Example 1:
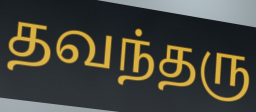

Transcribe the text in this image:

தவந்தரு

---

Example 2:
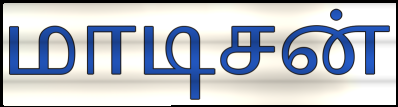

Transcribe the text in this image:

மாடிசன்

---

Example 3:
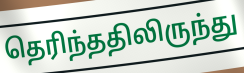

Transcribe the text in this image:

தெரிந்ததிலிருந்து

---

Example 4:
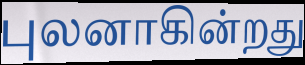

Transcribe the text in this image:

புலனாகின்றது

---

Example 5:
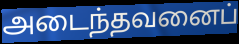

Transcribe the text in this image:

அடைந்தவனைப்